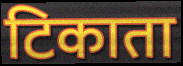
टिकाता